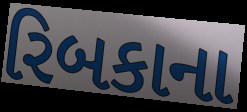
રિબકાના